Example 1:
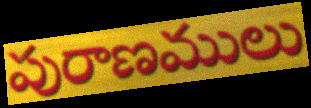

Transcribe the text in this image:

పురాణములు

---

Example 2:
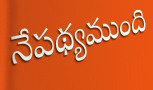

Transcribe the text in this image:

నేపథ్యముంది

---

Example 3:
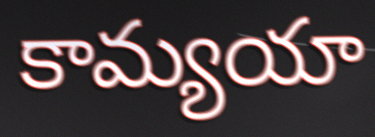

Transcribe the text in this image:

కామ్యయా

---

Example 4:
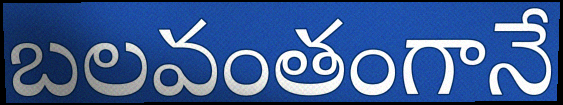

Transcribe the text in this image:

బలవంతంగానే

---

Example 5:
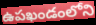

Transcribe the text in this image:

ఉపఖండంలోని